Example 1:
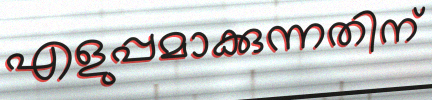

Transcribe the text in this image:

എളുപ്പമാക്കുന്നതിന്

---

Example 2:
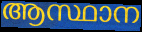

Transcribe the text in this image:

ആസ്ഥാന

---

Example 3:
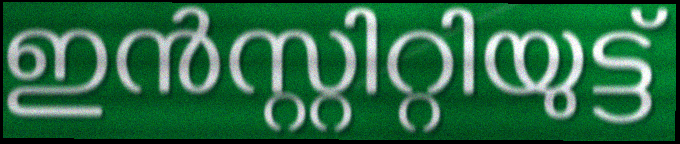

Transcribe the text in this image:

ഇൻസ്റ്റിറ്റിയുട്ട്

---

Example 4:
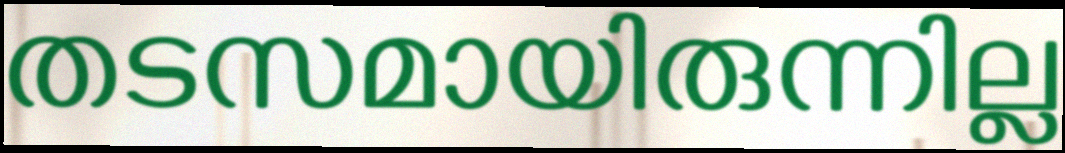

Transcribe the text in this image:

തടസമായിരുന്നില്ല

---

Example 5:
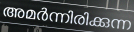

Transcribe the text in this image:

അമർന്നിരിക്കുന്ന